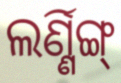
ଲର୍ଣ୍ଣିଙ୍ଗ୍